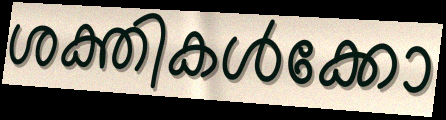
ശക്തികൾക്കോ